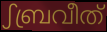
ഽബ്രവീത്